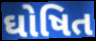
ઘોષિત